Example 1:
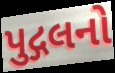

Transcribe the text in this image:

પુદ્ગલનો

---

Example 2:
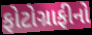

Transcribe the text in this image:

ફોટોગ્રાફીનો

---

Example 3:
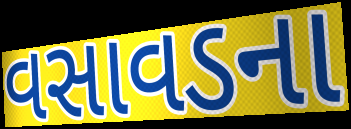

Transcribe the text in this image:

વસાવડના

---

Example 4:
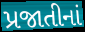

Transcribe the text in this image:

પ્રજાતીનાં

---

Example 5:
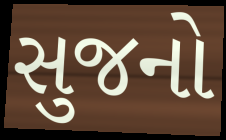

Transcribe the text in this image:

સુજનો